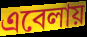
এবেলায়